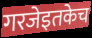
गरजेइतकेच